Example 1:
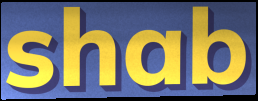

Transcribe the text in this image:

shab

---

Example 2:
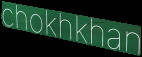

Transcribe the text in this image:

chokhkhan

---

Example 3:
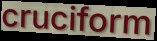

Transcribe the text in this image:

cruciform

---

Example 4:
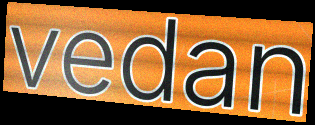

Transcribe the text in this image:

vedan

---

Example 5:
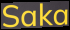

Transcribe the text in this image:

Saka